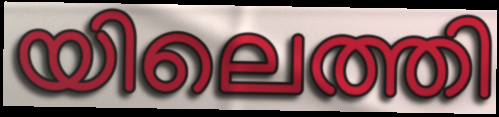
യിലെത്തി